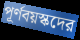
পূর্ণবয়স্কদের